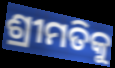
ଶ୍ରୀମତିକୁ